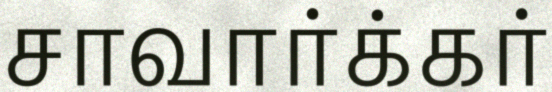
சாவார்க்கர்